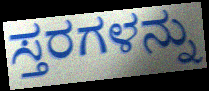
ಸ್ತರಗಳನ್ನು